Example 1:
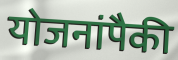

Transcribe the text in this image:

योजनांपैकी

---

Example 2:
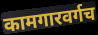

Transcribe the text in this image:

कामगारवर्गच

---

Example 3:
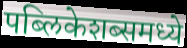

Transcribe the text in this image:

पब्लिकेशब्समध्ये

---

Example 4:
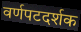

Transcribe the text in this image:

वर्णपटदर्शक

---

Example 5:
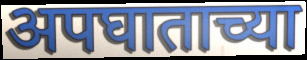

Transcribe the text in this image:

अपघाताच्या